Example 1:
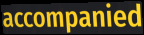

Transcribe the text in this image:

accompanied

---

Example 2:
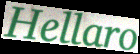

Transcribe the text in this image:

Hellaro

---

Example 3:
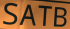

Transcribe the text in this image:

SATB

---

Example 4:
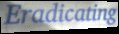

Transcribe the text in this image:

Eradicating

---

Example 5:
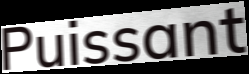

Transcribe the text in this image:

Puissant